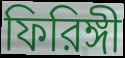
ফিরিঙ্গী